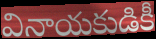
వినాయకుడికీ